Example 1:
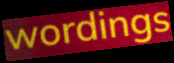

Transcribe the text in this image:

wordings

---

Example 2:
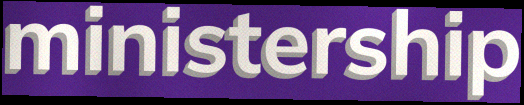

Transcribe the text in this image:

ministership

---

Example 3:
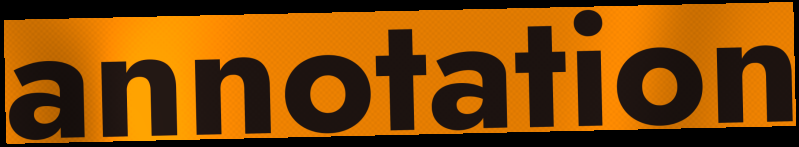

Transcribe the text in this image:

annotation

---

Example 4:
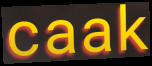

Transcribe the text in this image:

caak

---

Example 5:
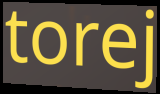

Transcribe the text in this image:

torej